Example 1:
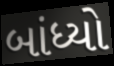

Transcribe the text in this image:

બાંધ્યો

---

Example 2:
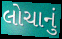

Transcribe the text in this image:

લોચાનું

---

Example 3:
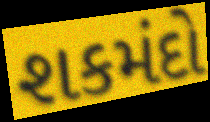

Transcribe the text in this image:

શકમંદો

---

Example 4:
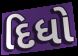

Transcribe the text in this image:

દિધો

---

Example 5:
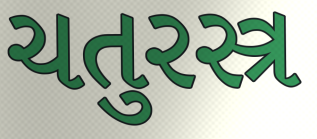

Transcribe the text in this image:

ચતુરસ્ત્ર